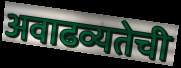
अवाढव्यतेची